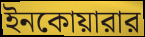
ইনকোয়ারার